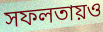
সফলতায়ও